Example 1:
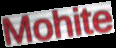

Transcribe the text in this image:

Mohite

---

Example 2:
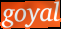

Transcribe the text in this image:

goyal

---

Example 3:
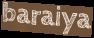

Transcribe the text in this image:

baraiya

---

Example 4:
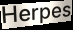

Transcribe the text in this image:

Herpes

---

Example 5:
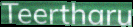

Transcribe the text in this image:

Teertharu